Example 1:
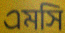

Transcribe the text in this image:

এমসি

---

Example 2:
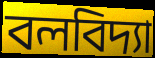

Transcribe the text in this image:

বলবিদ্যা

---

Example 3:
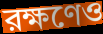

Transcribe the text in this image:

রক্ষণেও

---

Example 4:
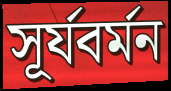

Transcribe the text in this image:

সূর্যবর্মন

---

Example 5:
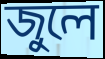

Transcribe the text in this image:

জুলে